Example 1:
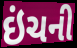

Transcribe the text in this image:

ઇંચની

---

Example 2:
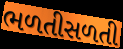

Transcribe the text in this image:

ભળતીસળતી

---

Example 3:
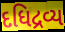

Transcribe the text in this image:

દધિદ્રવ્ય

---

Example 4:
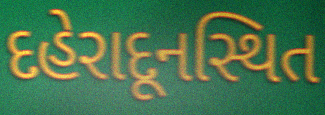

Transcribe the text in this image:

દહેરાદૂનસ્થિત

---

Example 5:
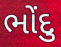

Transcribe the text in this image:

ભોંદુ